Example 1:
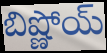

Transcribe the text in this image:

బిష్ణోయ్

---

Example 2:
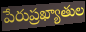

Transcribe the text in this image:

పేరుప్రఖ్యాతుల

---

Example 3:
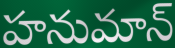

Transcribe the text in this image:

హనుమాన్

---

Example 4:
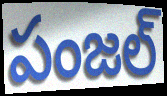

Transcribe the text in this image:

పంజల్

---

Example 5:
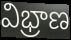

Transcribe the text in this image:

విభ్రాణ